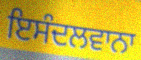
ਇਸੰਦਲਵਾਨਾ